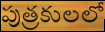
పుత్రకులలో